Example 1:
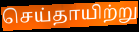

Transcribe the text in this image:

செய்தாயிற்று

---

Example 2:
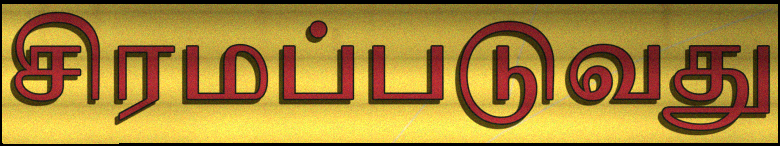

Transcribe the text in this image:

சிரமப்படுவது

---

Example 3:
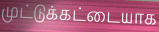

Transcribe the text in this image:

முட்டுக்கட்டையாக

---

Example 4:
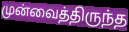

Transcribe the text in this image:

முன்வைத்திருந்த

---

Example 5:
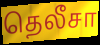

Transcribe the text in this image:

தெலீசா